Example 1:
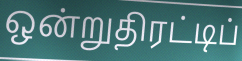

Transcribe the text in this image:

ஒன்றுதிரட்டிப்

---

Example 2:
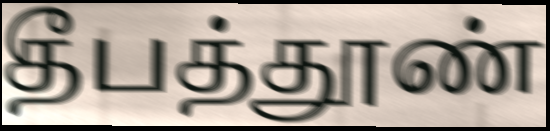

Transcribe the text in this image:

தீபத்தூண்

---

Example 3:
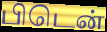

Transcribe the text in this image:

பிடென்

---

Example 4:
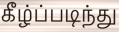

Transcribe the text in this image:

கீழ்ப்படிந்து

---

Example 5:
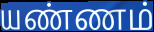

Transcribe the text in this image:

யண்ணம்